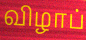
விழாப்